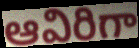
ఆవిరిగా